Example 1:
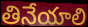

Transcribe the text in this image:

తినేయాలి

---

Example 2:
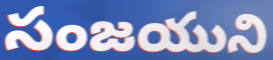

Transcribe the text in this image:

సంజయుని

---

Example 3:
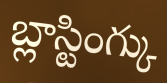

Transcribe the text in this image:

బ్లాస్టింగ్కు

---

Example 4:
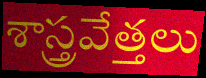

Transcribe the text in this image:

శాస్త్రవేత్తలు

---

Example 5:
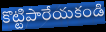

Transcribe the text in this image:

కొట్టిపారేయకండి